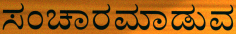
ಸಂಚಾರಮಾಡುವ